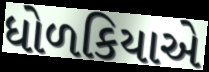
ધોળકિયાએ